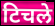
टिचले